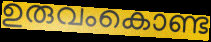
ഉരുവംകൊണ്ട